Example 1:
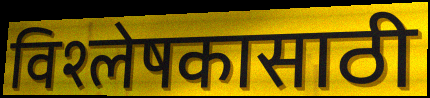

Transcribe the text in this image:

विश्लेषकासाठी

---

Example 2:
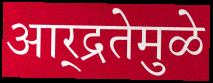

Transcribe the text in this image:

आर्द्रतेमुळे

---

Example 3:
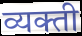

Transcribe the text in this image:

व्यक्ती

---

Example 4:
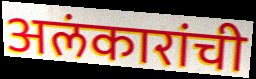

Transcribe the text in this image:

अलंकारांची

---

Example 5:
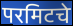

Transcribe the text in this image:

परमिटचे